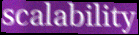
scalability